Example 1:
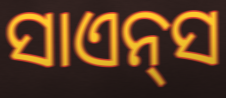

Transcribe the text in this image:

ସାଏନ୍‌ସ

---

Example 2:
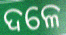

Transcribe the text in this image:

ଦଳେ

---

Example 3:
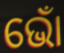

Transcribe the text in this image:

ଭୋଁ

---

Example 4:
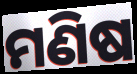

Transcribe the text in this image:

ମଣିଷ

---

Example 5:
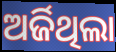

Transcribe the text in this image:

ଅର୍ଜିଥିଲା